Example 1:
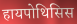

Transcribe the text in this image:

हायपोथिसिस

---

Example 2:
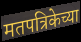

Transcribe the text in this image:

मतपत्रिकेच्या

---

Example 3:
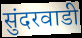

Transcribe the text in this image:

सुंदरवाडी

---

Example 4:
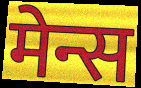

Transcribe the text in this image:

मेन्स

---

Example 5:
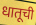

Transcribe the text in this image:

धातूची